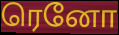
ரெனோ